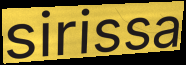
sirissa